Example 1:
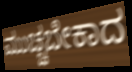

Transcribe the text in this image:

ಮುಚ್ಚಬೇಕಾದ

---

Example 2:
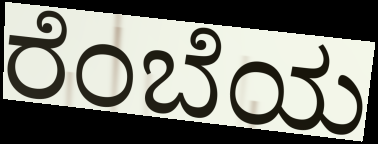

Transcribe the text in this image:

ರೆಂಬೆಯ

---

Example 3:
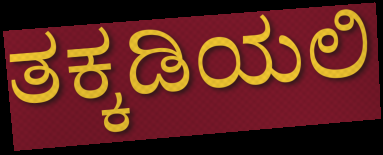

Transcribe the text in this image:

ತಕ್ಕಡಿಯಲಿ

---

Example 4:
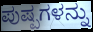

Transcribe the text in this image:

ಪುಷ್ಪಗಳನ್ನು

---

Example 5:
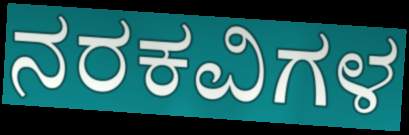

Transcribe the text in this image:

ನರಕವಿಗಳ